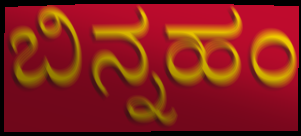
ಬಿನ್ನಹಂ